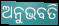
ଅନୁଭବତି